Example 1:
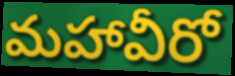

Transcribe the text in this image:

మహావీరో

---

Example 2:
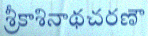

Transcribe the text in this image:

శ్రీకాశినాథచరణౌ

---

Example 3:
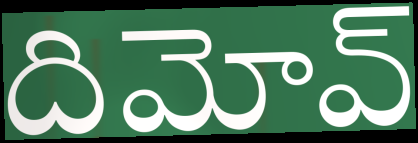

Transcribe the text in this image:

దిమోవ్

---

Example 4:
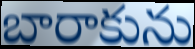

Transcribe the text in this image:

బారాకును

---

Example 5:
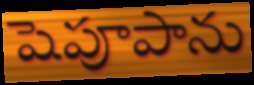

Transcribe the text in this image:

షెపూపాను